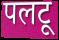
पलटू